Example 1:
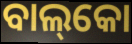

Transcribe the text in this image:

ବାଲ୍‌କୋ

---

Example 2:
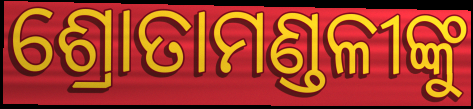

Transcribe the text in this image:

ଶ୍ରୋତାମଣ୍ଡଳୀଙ୍କୁ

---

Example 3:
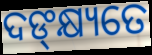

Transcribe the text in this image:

ଦଙ୍କ୍ଷ୍ଯତେ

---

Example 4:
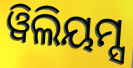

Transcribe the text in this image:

ୱିଲିୟମ୍ସ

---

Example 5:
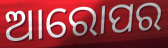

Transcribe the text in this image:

ଆରୋପର